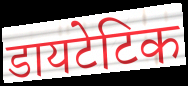
डायटेटिक